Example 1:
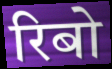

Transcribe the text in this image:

रिबो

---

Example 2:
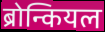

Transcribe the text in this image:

ब्रोन्कियल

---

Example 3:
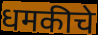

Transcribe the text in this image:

धमकीचे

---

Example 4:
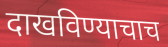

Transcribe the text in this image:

दाखविण्याचाच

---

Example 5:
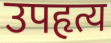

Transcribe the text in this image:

उपहृत्य